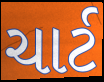
ચાર્ટ